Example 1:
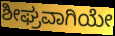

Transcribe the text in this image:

ಶೀಘ್ರವಾಗಿಯೇ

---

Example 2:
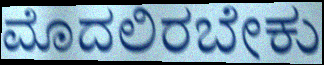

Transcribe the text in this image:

ಮೊದಲಿರಬೇಕು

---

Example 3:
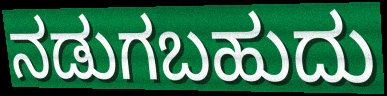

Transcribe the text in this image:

ನಡುಗಬಹುದು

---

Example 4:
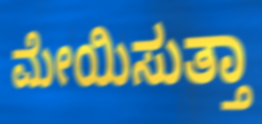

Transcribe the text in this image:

ಮೇಯಿಸುತ್ತಾ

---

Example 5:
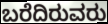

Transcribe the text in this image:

ಬರೆದಿರುವರು